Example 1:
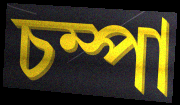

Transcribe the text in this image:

চম্পা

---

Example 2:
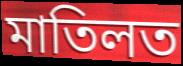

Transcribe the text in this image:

মাতিলত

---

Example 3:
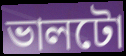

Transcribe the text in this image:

ভালটো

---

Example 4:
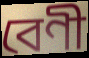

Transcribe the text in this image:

বেণী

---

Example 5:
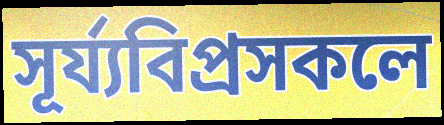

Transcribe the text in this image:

সূৰ্য্যবিপ্ৰসকলে